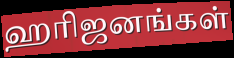
ஹரிஜனங்கள்